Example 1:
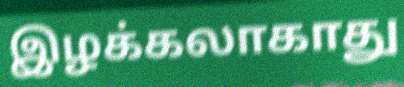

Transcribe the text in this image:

இழக்கலாகாது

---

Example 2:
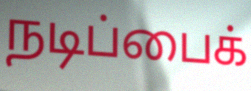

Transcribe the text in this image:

நடிப்பைக்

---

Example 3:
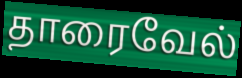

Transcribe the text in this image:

தாரைவேல்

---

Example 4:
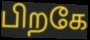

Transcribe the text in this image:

பிறகே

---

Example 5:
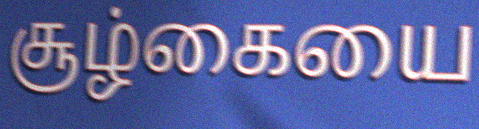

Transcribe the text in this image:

சூழ்கையை